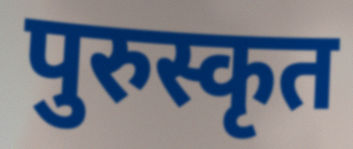
पुरुस्कृत